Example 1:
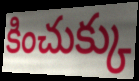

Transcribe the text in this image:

కించుక్కు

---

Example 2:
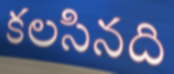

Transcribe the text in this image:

కలసినది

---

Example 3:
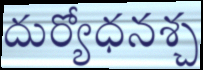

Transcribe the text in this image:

దుర్యోధనశ్చ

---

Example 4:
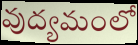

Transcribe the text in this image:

వుద్యమంలో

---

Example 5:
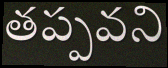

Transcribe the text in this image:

తప్పవని